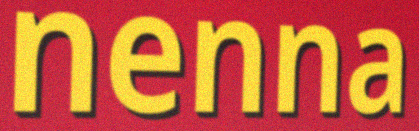
nenna